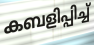
കബളിപ്പിച്ച്